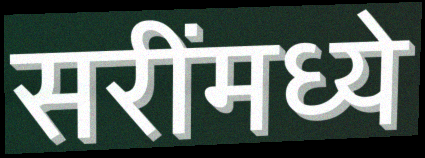
सरींमध्ये